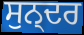
ਸੁਨ੍ਦਰ